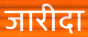
जारीदा